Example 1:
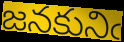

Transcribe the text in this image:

జనకునిఁ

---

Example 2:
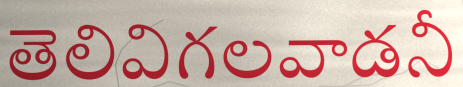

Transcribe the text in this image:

తెలివిగలవాడనీ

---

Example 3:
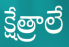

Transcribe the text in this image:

క్షేత్రాలే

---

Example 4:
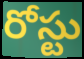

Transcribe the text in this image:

రోస్టు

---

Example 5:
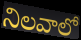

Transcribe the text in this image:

నిలవాలో